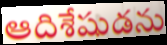
ఆదిశేషుడను